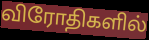
விரோதிகளில்